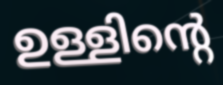
ഉള്ളിന്റെ